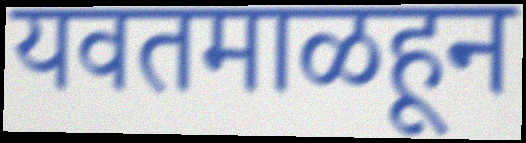
यवतमाळहून